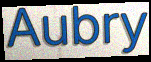
Aubry